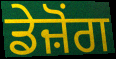
ਡੇਜ਼ੋਂਗ